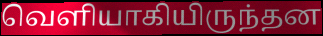
வெளியாகியிருந்தன